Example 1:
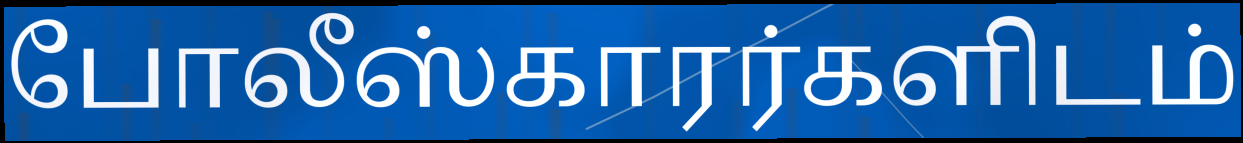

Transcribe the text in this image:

போலீஸ்காரர்களிடம்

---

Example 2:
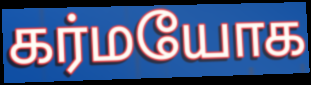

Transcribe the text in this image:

கர்மயோக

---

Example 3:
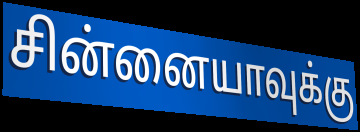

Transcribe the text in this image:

சின்னையாவுக்கு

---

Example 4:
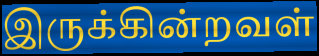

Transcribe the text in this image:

இருக்கின்றவள்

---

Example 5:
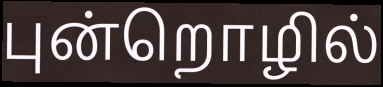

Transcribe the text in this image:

புன்றொழில்